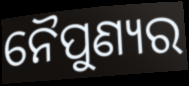
ନୈପୁଣ୍ୟର